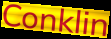
Conklin